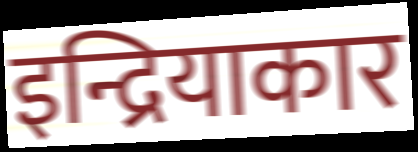
इन्द्रियाकार